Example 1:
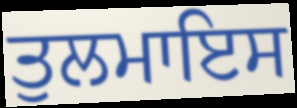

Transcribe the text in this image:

ਤੁਲਮਾਇਸ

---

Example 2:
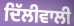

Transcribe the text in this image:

ਦਿੱਲੀਵਾਲੀ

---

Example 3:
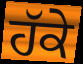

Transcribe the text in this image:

ਹੱਕੇ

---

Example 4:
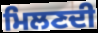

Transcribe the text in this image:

ਮਿਲਣਦੀ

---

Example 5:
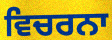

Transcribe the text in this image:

ਵਿਚਰਨਾ